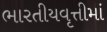
ભારતીયવૃત્તીમાં